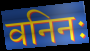
वनिनः